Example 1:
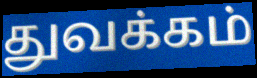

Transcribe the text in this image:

துவக்கம்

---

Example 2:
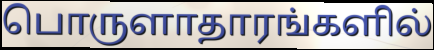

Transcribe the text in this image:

பொருளாதாரங்களில்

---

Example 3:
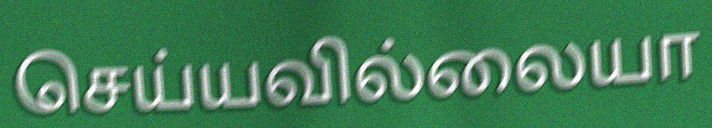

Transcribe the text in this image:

செய்யவில்லையா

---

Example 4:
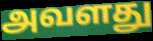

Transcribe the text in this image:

அவளது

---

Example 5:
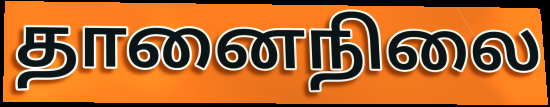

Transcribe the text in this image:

தானைநிலை